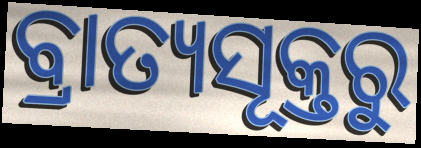
ବ୍ରାତ୍ୟସୂକ୍ତରୁ